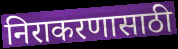
निराकरणासाठी